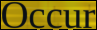
Occur